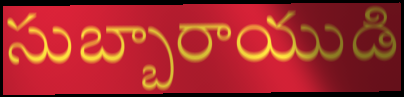
సుబ్బారాయుడి